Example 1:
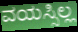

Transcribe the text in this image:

ವಯಸ್ಸಿಲ್ಲ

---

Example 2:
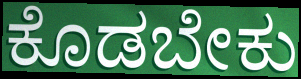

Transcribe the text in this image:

ಕೊಡಬೇಕು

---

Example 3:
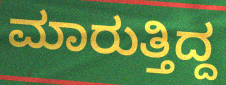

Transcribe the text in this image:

ಮಾರುತ್ತಿದ್ದ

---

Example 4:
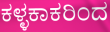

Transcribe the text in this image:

ಕಳ್ಳಕಾಕರಿಂದ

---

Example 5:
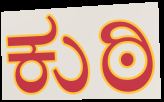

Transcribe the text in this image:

ಕುಠಿ